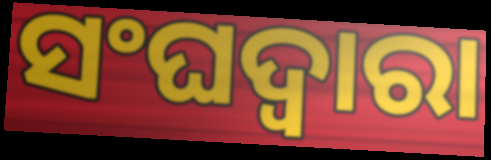
ସଂଘଦ୍ୱାରା